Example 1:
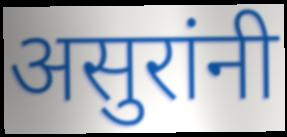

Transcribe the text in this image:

असुरांनी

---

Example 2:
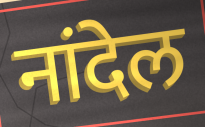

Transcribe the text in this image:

नांदेल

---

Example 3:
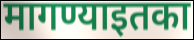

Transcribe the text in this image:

मागण्याइतका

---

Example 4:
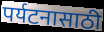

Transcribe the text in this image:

पर्यटनासाठी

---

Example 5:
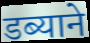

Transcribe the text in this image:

डब्याने